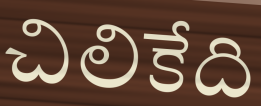
చిలికేది